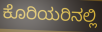
ಕೊರಿಯರಿನಲ್ಲಿ